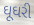
ઘૂઘરી